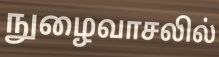
நுழைவாசலில்